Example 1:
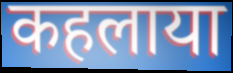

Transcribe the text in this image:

कहलाया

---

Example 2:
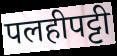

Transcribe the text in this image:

पलहीपट्टी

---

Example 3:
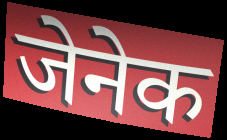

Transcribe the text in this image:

जेनेक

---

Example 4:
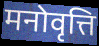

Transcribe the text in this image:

मनोवृत्ति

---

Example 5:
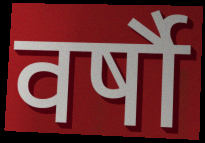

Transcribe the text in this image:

वर्षौ